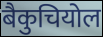
बैकुचियोल